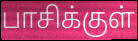
பாசிக்குள்